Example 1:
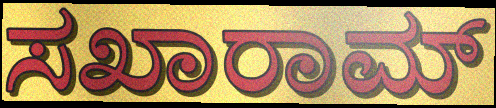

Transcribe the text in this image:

ಸಖಾರಾಮ್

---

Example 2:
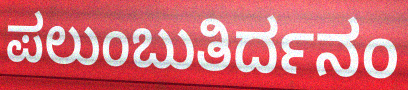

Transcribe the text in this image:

ಪಲುಂಬುತಿರ್ದನಂ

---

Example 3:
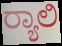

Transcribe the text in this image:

ರ‍್ಯಾಲಿ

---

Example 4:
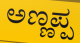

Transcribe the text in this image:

ಅಣ್ಣಪ್ಪ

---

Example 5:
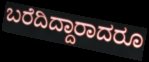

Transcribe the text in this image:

ಬರೆದಿದ್ದಾರಾದರೂ